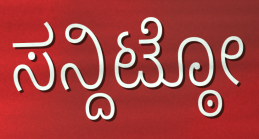
ಸನ್ದಿಟ್ಠೋ